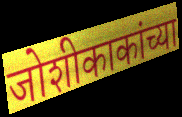
जोशीकाकांच्या